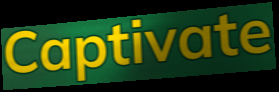
Captivate